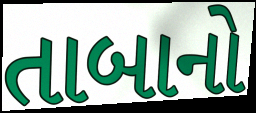
તાબાનો